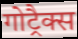
गोट्रैक्स